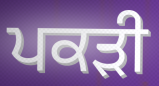
ਪਕੜੀ